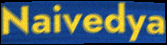
Naivedya